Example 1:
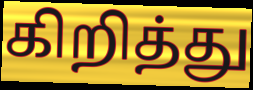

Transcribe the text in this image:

கிறித்து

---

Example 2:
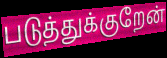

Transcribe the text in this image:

படுத்துக்குறேன்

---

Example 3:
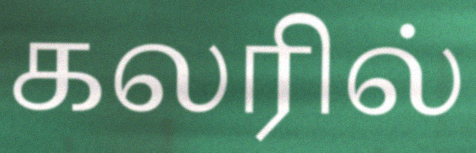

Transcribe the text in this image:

கலரில்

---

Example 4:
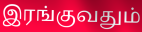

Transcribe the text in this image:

இரங்குவதும்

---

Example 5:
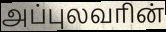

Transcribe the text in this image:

அப்புலவரின்